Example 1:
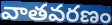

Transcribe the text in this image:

వాతవరణం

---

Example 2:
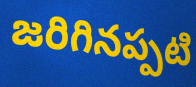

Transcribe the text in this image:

జరిగినప్పటి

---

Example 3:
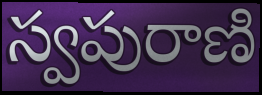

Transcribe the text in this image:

స్వపురాణి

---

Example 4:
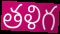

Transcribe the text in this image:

తళిగ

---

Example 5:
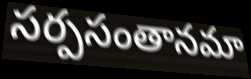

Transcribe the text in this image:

సర్పసంతానమా